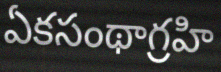
ఏకసంథాగ్రహి